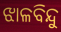
ଝାଳବିନ୍ଦୁ